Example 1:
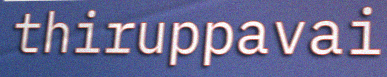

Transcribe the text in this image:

thiruppavai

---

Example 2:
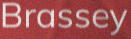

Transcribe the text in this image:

Brassey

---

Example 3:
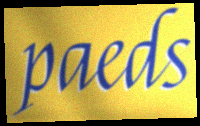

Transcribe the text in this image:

paeds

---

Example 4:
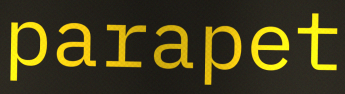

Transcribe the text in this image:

parapet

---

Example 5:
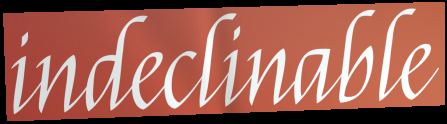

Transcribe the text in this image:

indeclinable